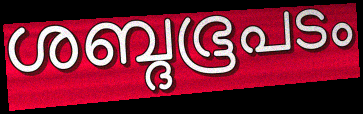
ശബ്ദഭൂപടം